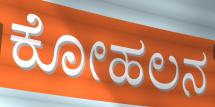
ಕೋಹಲನ